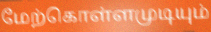
மேற்கொள்ளமுடியும்